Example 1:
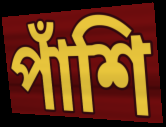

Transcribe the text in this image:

পাঁশি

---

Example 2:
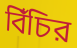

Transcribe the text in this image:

বিঁচির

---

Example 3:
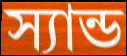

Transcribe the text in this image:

স্যান্ড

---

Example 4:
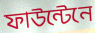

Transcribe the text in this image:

ফাউন্টেনে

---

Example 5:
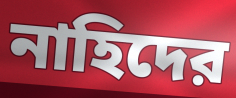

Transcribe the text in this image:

নাহিদের